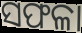
ସଫଳା